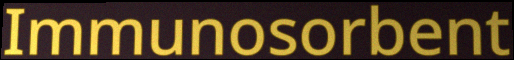
Immunosorbent